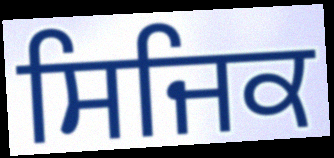
ਸਿਜਿਕ